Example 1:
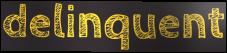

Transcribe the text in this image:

delinquent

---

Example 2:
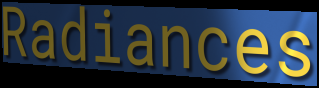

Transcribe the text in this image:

Radiances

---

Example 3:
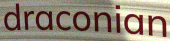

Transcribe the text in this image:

draconian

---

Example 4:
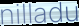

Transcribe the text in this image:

nilladu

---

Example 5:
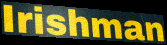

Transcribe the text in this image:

Irishman